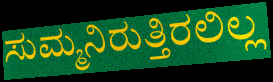
ಸುಮ್ಮನಿರುತ್ತಿರಲಿಲ್ಲ